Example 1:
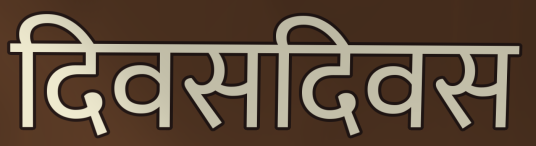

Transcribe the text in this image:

दिवसदिवस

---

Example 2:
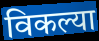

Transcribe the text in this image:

विकल्या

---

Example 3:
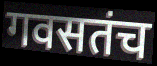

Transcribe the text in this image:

गवसतंच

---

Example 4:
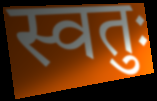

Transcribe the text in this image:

स्वतुः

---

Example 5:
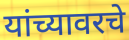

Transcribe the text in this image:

यांच्यावरचे